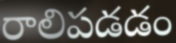
రాలిపడడం